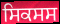
ਸਿਕਸਸ